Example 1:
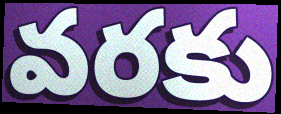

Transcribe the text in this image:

వరకు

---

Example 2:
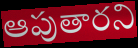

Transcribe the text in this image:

ఆపుతారని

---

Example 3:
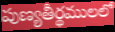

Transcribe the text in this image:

పుణ్యతీర్థములలో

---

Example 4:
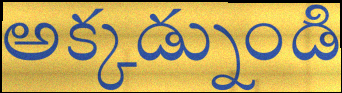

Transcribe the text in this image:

అక్కడ్నుండి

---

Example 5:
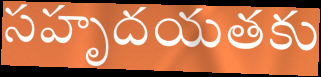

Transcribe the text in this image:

సహృదయతకు